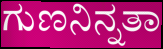
ಗುಣನಿನ್ನತಾ